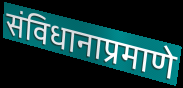
संविधानाप्रमाणे